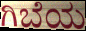
ಗಿಬೆಯ